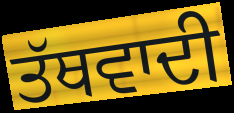
ਤੱਥਵਾਦੀ